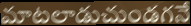
మాటలాడుచుండగనే